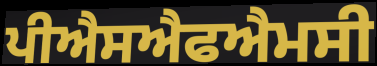
ਪੀਐਸਐਫਐਮਸੀ